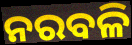
ନରବଳି